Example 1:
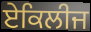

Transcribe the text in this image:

ਏਕਿਲੀਜ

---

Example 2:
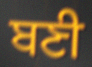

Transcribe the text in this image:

ਬਣੀ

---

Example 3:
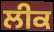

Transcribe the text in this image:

ਲੀਕ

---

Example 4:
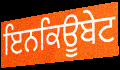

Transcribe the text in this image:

ਇਨਕਿਊਬੇਟ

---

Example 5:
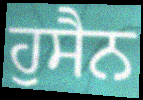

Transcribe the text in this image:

ਹੁਸੈਨ